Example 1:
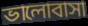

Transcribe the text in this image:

ভালোবাসা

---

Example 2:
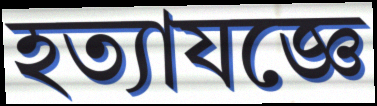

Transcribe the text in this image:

হত্যাযজ্ঞে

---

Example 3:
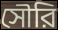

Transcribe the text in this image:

সৌরি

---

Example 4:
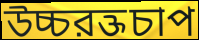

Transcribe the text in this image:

উচ্চরক্তচাপ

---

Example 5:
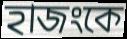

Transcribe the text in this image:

হাজংকে